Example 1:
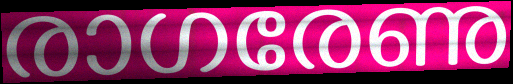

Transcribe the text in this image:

രാഗരേണു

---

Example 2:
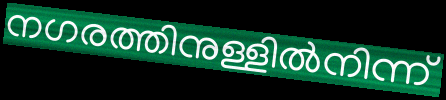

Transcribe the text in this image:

നഗരത്തിനുള്ളിൽനിന്ന്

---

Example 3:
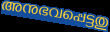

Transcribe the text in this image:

അനുഭവപ്പെട്ടതു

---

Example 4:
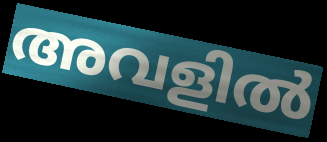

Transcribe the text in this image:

അവളിൽ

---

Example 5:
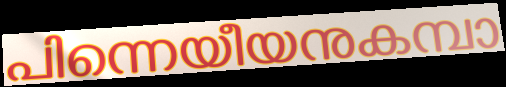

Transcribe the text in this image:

പിന്നെയീയനുകമ്പാ